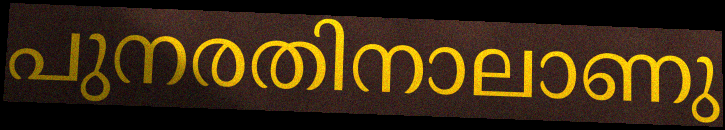
പുനരതിനാലാണു